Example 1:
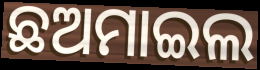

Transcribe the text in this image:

ଛଅମାଇଲ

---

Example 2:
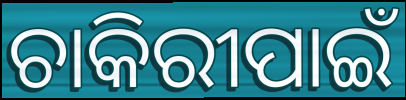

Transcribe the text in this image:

ଚାକିରୀପାଇଁ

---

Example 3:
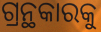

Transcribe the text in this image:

ଗ୍ରନ୍ଥକାରକୁ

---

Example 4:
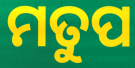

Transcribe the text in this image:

ମତୁପ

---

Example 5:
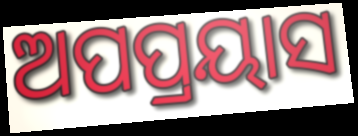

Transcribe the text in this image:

ଅପପ୍ରୟାସ